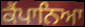
ਕੈਂਪਾਨਿਆ